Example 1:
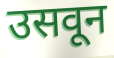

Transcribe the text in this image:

उसवून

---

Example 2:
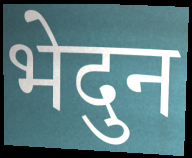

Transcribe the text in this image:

भेदुन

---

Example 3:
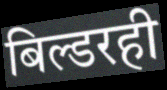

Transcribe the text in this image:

बिल्डरही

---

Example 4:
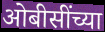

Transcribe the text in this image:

ओबीसींच्या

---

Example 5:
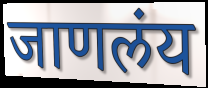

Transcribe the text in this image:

जाणलंय